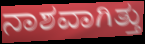
ನಾಶವಾಗಿತ್ತು